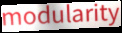
modularity